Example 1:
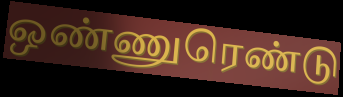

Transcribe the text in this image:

ஒண்ணுரெண்டு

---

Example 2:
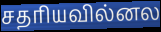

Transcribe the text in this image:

சதரியவில்னல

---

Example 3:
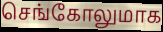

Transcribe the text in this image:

செங்கோலுமாக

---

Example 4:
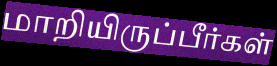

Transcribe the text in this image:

மாறியிருப்பீர்கள்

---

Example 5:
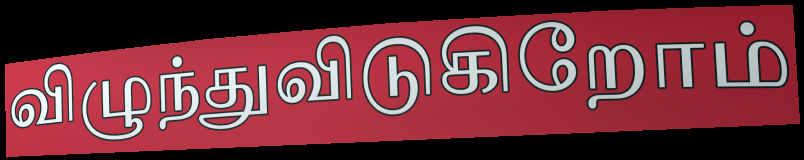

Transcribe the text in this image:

விழுந்துவிடுகிறோம்